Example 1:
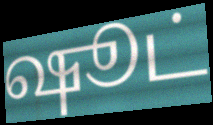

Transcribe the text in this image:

ஷூட்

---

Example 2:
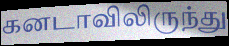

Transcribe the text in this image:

கனடாவிலிருந்து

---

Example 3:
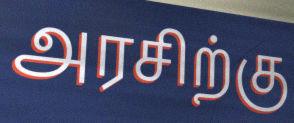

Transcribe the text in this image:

அரசிற்கு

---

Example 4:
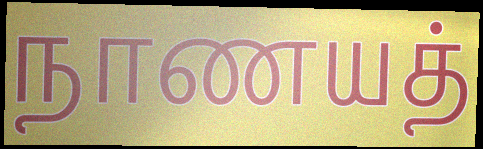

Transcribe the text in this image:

நாணயத்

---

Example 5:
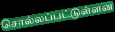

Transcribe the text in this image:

சொல்லப்பட்டுள்ளன